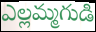
ఎల్లమ్మగుడి